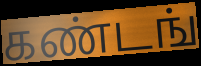
கண்டங்